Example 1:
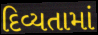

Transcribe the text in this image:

દિવ્યતામાં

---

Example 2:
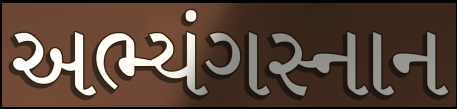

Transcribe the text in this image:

અભ્યંગસ્નાન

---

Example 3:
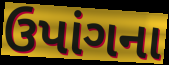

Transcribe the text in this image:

ઉપાંગના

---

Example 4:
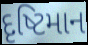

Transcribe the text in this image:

દૃષ્ટિમાન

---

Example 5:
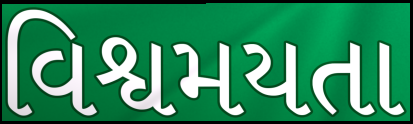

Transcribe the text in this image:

વિશ્વમયતા